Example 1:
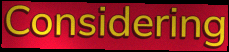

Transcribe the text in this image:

Considering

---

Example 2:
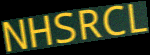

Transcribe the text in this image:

NHSRCL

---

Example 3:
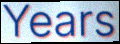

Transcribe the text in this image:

Years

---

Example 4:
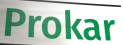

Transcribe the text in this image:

Prokar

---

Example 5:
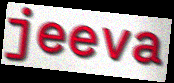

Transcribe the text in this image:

jeeva